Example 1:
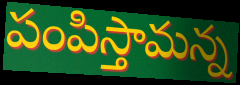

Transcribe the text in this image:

పంపిస్తామన్న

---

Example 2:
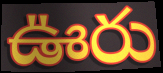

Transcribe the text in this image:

ఊరు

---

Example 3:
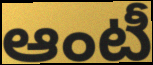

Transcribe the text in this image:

ఆంటీ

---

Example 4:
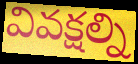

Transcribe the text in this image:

వివక్షల్ని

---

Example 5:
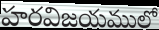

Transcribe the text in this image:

హరవిజయములో